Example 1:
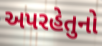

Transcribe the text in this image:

અપરહેતુનો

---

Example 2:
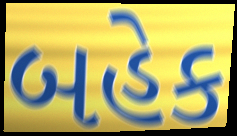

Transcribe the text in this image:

બહેક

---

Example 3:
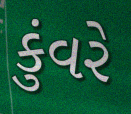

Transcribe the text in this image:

કુંવરે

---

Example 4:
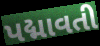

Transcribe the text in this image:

પદ્માવતી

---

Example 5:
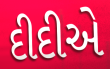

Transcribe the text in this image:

દીદીએ